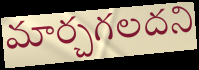
మార్చగలదని